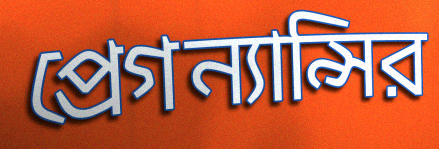
প্রেগন্যান্সির